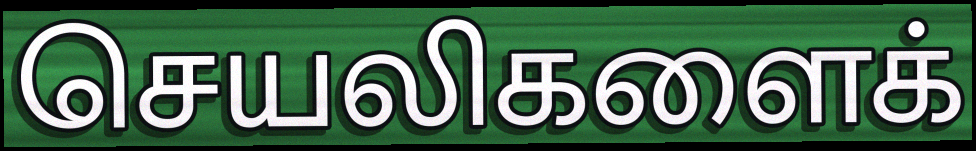
செயலிகளைக்